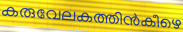
കരുവേലകത്തിൻകീഴെ